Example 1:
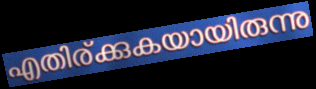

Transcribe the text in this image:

എതിര്ക്കുകയായിരുന്നു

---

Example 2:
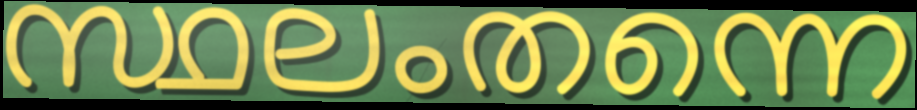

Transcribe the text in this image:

സ്ഥലംതന്നെ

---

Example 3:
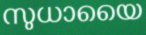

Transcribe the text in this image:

സുധായൈ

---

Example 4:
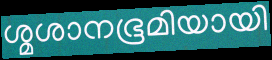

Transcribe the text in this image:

ശ്മശാനഭൂമിയായി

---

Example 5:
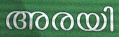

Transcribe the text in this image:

അരയി